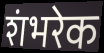
शंभरेक